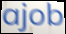
ajob